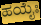
ಹಯೈಃ